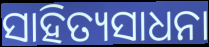
ସାହିତ୍ୟସାଧନା